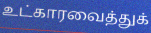
உட்காரவைத்துக்